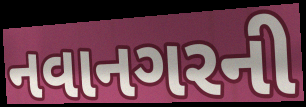
નવાનગરની